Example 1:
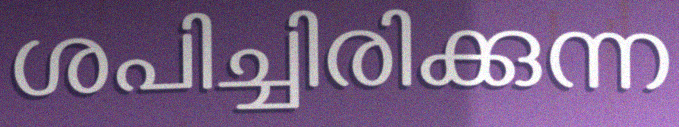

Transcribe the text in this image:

ശപിച്ചിരിക്കുന്ന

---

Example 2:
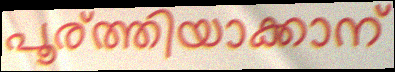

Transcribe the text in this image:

പൂര്ത്തിയാക്കാന്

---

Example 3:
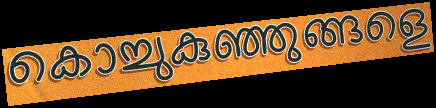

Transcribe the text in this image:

കൊച്ചുകുഞ്ഞുങ്ങളെ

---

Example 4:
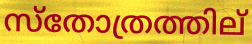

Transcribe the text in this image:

സ്തോത്രത്തില്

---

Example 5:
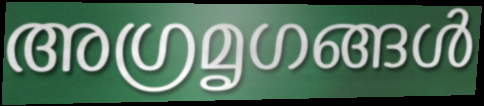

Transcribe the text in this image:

അഗ്രമൃഗങ്ങൾ